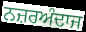
ਨਜ਼ਰਅੰਦਾਜ